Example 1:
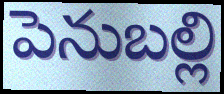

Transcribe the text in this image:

పెనుబల్లి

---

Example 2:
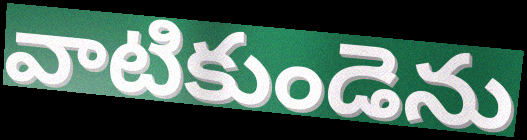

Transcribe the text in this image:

వాటికుండెను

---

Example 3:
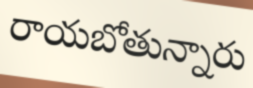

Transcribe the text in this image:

రాయబోతున్నారు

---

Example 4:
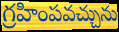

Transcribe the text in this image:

గ్రహింపవచ్చును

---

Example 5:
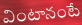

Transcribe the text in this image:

వింటానంటే